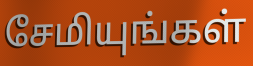
சேமியுங்கள்